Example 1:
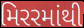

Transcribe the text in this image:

મિરરમાંથી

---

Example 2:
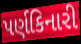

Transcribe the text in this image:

પર્ણકિનારી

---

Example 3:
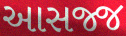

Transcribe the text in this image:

આસજ્જ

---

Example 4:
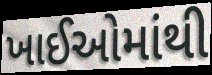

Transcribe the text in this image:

ખાઈઓમાંથી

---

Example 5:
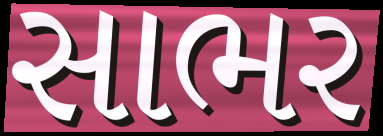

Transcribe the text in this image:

સાભર